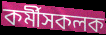
কৰ্মীসকলক